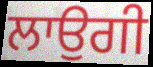
ਲਾਉਗੀ